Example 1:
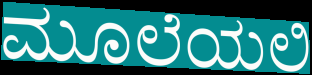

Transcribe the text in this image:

ಮೂಲೆಯಲಿ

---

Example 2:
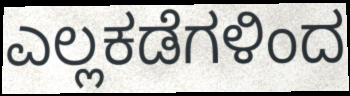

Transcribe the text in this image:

ಎಲ್ಲಕಡೆಗಳಿಂದ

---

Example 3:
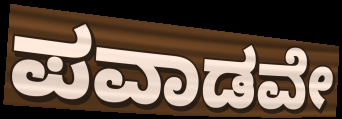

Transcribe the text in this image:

ಪವಾಡವೇ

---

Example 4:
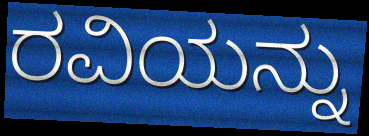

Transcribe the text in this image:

ರವಿಯನ್ನು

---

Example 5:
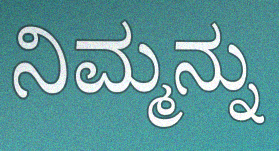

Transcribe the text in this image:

ನಿಮ್ಮನ್ನು